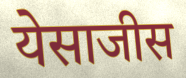
येसाजीस